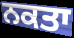
ਨਕਤਾ